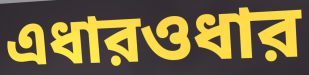
এধারওধার